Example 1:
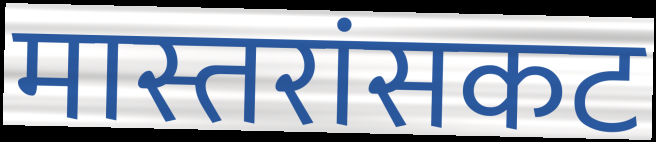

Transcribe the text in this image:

मास्तरांसकट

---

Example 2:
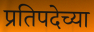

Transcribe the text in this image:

प्रतिपदेच्या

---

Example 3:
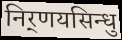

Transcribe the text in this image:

निर्णयसिन्धु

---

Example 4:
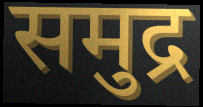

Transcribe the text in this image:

समुद्र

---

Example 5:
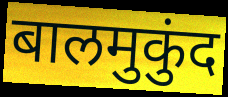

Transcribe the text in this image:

बालमुकुंद